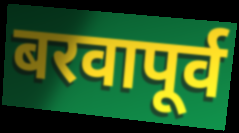
बरवापूर्व